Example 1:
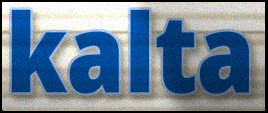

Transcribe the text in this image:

kalta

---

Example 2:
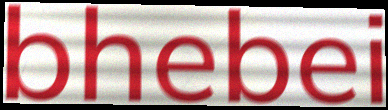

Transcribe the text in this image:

bhebei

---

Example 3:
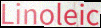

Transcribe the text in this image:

Linoleic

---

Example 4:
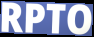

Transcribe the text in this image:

RPTO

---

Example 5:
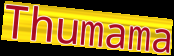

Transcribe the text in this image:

Thumama